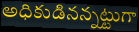
అధికుడినన్నట్టుగా